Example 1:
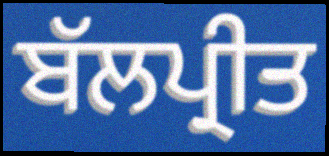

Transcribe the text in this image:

ਬੱਲਪ੍ਰੀਤ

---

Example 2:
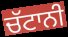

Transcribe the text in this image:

ਚੱਟਾਨੀ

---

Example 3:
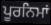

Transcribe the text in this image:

ਪੂਰਨਿਮਾਂ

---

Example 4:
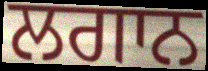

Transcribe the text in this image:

ਲਗਾਨ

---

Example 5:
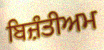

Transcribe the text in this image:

ਬਿਜ਼ੰਤੀਅਮ